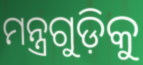
ମନ୍ତ୍ରଗୁଡ଼ିକୁ